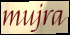
mujra